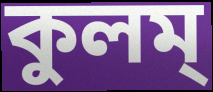
কুলম্